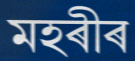
মহৰীৰ